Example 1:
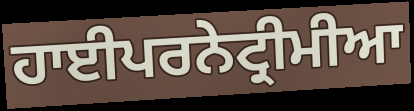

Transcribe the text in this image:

ਹਾਈਪਰਨੇਟ੍ਰੀਮੀਆ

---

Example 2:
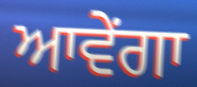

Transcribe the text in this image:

ਆਵੇਂਗਾ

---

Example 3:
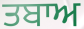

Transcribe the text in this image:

ਤਬਾਅ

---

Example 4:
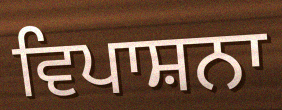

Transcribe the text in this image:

ਵਿਪਾਸ਼ਨਾ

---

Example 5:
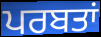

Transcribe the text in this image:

ਪਰਬਤਾਂ